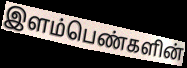
இளம்பெண்களின்